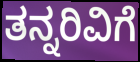
ತನ್ನರಿವಿಗೆ